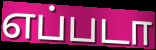
எப்படா